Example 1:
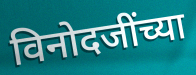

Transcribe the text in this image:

विनोदजींच्या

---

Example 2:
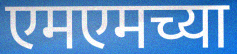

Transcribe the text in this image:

एमएमच्या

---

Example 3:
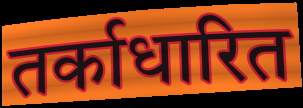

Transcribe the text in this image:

तर्काधारित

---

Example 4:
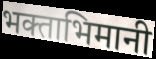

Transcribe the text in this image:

भक्ताभिमानी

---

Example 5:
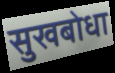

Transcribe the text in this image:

सुखबोधा